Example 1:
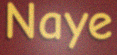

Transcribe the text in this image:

Naye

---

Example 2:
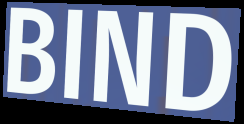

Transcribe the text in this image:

BIND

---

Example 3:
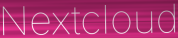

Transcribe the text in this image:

Nextcloud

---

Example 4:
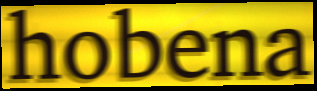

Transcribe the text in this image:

hobena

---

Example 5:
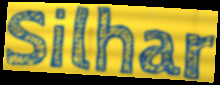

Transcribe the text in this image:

Silhar